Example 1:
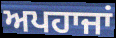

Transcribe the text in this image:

ਅਪਹਾਜਾਂ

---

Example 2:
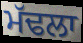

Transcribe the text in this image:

ਮੱਢਲਾ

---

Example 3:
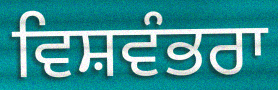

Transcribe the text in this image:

ਵਿਸ਼ਵੰਭਰਾ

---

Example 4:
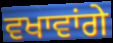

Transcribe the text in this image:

ਵਖਾਵਾਂਗੇ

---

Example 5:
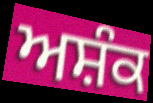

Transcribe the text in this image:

ਅਸ਼ੰਕ